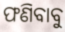
ଫଣିବାବୁ